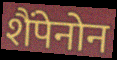
शैंपेनोन